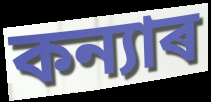
কন্যাৰ